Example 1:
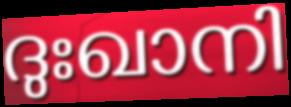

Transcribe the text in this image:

ദുഃഖാനി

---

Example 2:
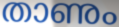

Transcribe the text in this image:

താണും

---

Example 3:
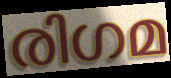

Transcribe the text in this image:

രിഗമ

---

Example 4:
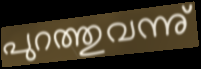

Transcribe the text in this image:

പുറത്തുവന്നു്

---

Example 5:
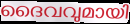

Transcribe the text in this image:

ദൈവവുമായി